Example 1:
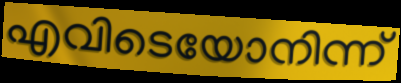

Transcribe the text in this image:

എവിടെയോനിന്ന്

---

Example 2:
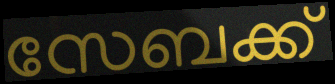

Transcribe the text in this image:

സേബക്ക്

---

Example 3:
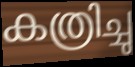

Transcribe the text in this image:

കത്രിച്ചു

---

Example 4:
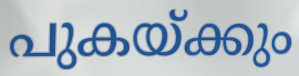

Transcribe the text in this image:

പുകയ്ക്കും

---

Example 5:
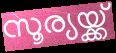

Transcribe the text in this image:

സൂര്യയ്ക്ക്